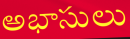
అభాసులు